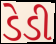
ડેડી